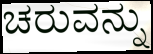
ಚರುವನ್ನು